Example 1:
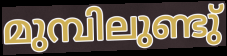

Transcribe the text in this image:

മുമ്പിലുണ്ടു്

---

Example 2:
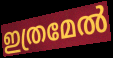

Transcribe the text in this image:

ഇത്രമേൽ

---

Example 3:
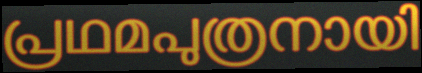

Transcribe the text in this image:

പ്രഥമപുത്രനായി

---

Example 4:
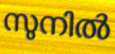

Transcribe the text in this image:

സുനിൽ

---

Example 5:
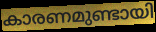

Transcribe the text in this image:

കാരണമുണ്ടായി